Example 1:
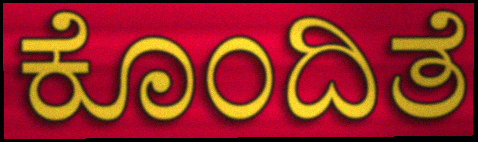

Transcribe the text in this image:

ಕೊಂದಿತೆ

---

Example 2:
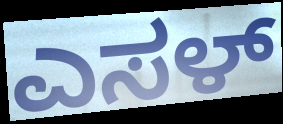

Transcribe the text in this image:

ಎಸಳ್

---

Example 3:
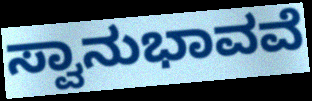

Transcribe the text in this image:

ಸ್ವಾನುಭಾವವೆ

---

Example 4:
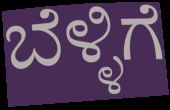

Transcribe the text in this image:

ಬೆಳ್ಳಿಗೆ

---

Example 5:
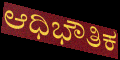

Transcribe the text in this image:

ಆಧಿಭೌತಿಕ